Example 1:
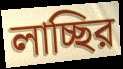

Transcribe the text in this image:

লাচ্ছির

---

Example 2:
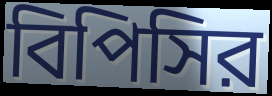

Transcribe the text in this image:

বিপিসির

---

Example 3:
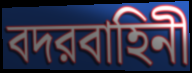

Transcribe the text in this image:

বদরবাহিনী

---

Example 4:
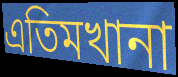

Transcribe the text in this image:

এতিমখানা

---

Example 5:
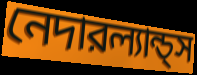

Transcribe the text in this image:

নেদারল্যান্ড্‌স